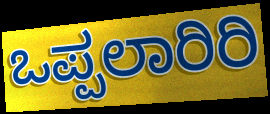
ಒಪ್ಪಲಾರಿರಿ